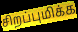
சிறப்புமிக்க